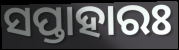
ସପ୍ତାହାରଃ